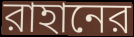
রাহানের